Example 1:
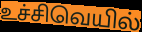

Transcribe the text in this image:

உச்சிவெயில்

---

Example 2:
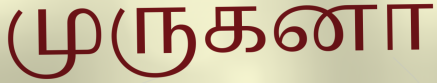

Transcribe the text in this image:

முருகனா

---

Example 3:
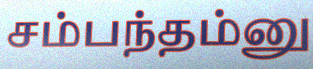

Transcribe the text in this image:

சம்பந்தம்னு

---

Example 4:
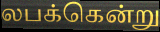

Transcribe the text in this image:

லபக்கென்று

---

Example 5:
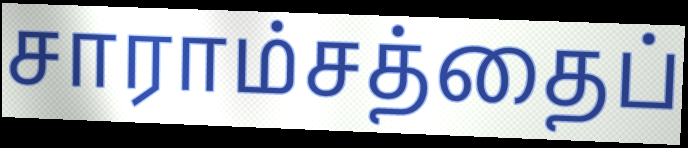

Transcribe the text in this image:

சாராம்சத்தைப்